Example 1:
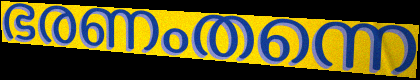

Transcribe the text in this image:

ഭരണംതന്നെ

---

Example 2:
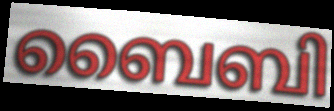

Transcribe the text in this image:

ബൈബി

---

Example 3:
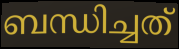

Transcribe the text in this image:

ബന്ധിച്ചത്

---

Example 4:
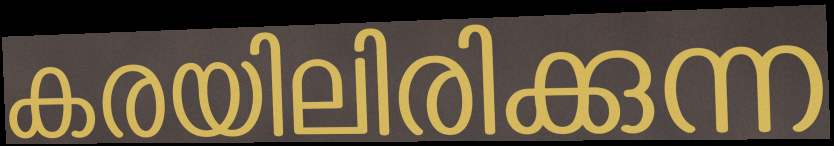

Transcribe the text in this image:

കരയിലിരിക്കുന്ന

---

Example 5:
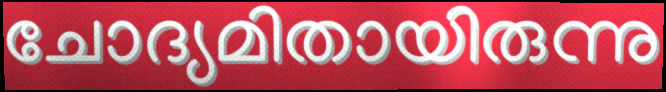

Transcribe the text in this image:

ചോദ്യമിതായിരുന്നു